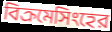
বিক্রমেসিংহের